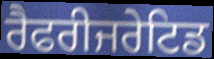
ਰੈਫਰੀਜਰੇਟਿਡ